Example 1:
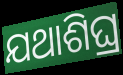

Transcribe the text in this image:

ଯଥାଶିଘ୍ର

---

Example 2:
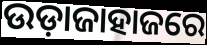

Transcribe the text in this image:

ଉଡ଼ାଜାହାଜରେ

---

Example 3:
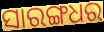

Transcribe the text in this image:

ସାରଙ୍ଗଧର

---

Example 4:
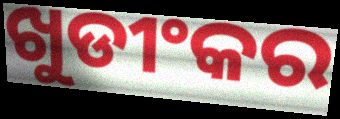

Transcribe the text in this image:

ଖୁଡୀଂକର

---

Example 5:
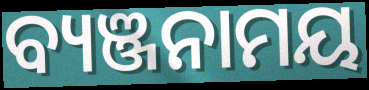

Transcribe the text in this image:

ବ୍ୟଞ୍ଜନାମୟ